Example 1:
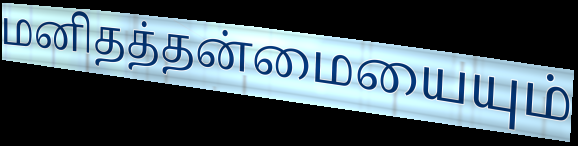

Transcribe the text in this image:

மனிதத்தன்மையையும்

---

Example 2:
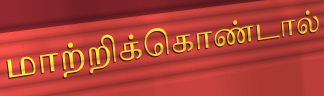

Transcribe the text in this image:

மாற்றிக்கொண்டால்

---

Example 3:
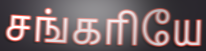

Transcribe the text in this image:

சங்கரியே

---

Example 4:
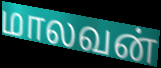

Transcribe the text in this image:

மாலவன்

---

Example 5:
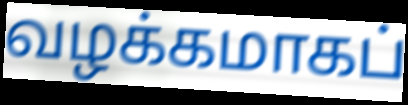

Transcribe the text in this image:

வழக்கமாகப்